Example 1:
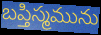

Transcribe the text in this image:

బప్తిస్మమును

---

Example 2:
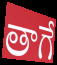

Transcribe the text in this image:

తాగే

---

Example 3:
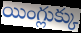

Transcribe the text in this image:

యింగ్లుక్కు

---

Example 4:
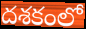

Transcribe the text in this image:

దశకంలో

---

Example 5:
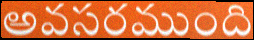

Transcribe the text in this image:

అవసరముంది